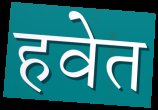
हवेत